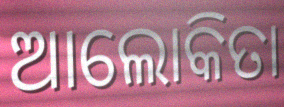
ଆଲୋକିତା